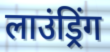
लाउंड्रिंग